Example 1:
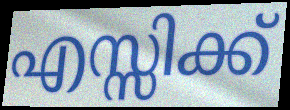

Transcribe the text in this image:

എസ്സിക്ക്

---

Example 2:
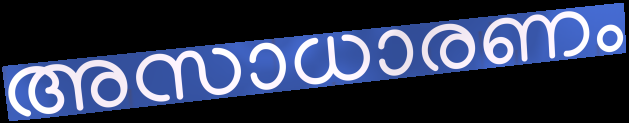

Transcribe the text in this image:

അസാധാരണം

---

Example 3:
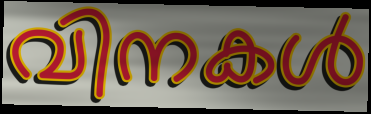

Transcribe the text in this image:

വിനകൾ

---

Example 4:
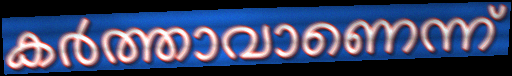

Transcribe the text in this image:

കർത്താവാണെന്ന്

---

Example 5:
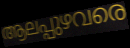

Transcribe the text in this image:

ആലപ്പുഴവരെ